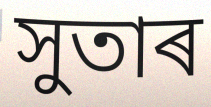
সুতাৰ